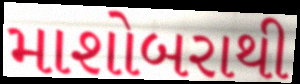
માશોબરાથી